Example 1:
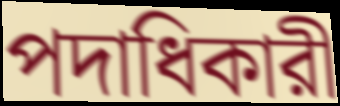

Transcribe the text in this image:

পদাধিকারী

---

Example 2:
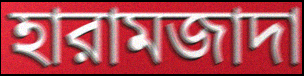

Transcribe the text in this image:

হারামজাদা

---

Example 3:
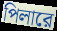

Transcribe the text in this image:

পিলারে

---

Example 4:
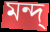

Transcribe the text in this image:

মন্দ্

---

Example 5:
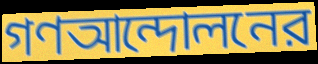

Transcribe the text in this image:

গণআন্দোলনের